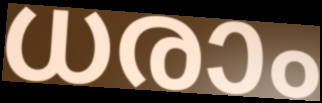
ധരാം